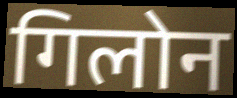
गिलोन